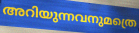
അറിയുന്നവനുമത്രെ